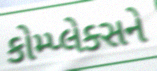
કોમ્પ્લેક્સને